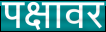
पक्षावर